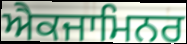
ਐਕਜਾਮਿਨਰ